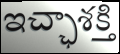
ఇచ్ఛాశక్తి